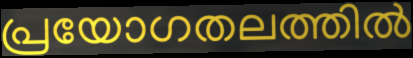
പ്രയോഗതലത്തിൽ